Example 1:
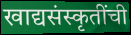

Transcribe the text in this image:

खाद्यसंस्कृतींची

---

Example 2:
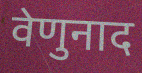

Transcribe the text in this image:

वेणुनाद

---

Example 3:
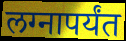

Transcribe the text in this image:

लग्नापर्यंत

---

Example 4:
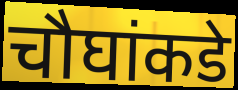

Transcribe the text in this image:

चौघांकडे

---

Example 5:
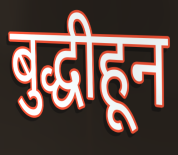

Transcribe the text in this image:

बुद्धीहून